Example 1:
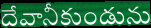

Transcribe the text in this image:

దేవానీకుండును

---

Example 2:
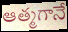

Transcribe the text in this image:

ఆత్మగానే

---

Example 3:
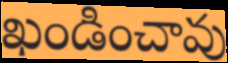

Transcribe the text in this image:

ఖండించావు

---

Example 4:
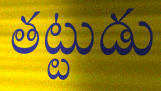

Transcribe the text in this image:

తట్టుడు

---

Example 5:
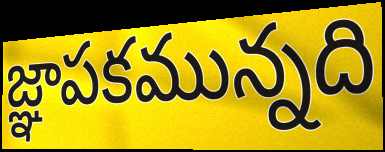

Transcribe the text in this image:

జ్ఞాపకమున్నది